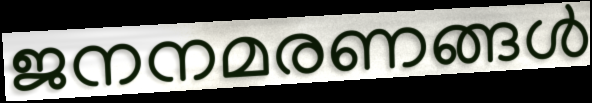
ജനനമരണങ്ങൾ